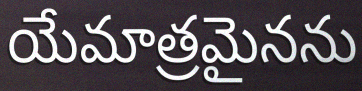
యేమాత్రమైనను